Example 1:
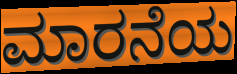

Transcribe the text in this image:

ಮಾರನೆಯ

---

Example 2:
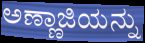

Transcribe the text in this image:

ಅಣ್ಣಾಜಿಯನ್ನು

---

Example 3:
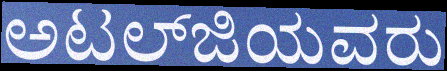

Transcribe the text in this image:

ಅಟಲ್‍ಜಿಯವರು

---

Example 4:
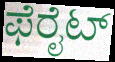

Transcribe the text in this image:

ಫೆರೈಟ್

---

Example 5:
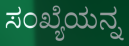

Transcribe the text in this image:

ಸಂಖ್ಯೆಯನ್ನ